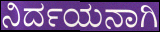
ನಿರ್ದಯನಾಗಿ